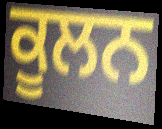
ਕੂਲਨ